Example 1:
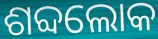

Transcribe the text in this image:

ଶବ୍ଦଲୋକ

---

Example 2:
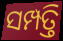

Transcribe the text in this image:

ସମ୍ପତ୍ତି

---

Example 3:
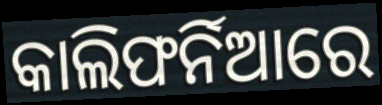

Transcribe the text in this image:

କାଲିଫର୍ନିଆରେ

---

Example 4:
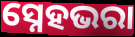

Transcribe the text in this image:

ସ୍ନେହଭରା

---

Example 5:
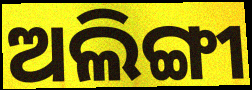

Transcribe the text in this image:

ଅଲିଙ୍ଗୀ